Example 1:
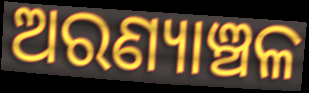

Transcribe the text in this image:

ଅରଣ୍ୟାଞ୍ଚଳ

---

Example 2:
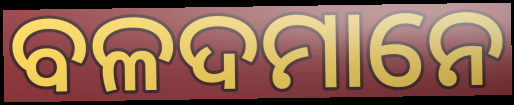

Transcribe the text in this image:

ବଳଦମାନେ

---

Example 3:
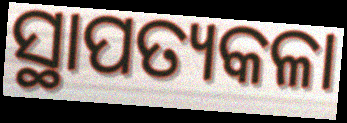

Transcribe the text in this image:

ସ୍ଥାପତ୍ୟକଳା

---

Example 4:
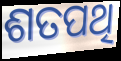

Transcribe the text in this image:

ଶତପଥି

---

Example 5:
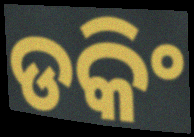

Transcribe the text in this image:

ଡକିଂ